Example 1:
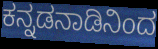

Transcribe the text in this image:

ಕನ್ನಡನಾಡಿನಿಂದ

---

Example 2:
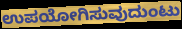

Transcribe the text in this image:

ಉಪಯೋಗಿಸುವುದುಂಟು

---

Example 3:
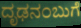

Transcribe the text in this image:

ದೃಢನಂಬುಗೆ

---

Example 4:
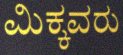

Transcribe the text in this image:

ಮಿಕ್ಕವರು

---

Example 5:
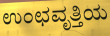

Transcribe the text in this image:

ಉಂಛವೃತ್ತಿಯ